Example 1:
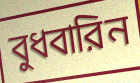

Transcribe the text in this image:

বুধবারিন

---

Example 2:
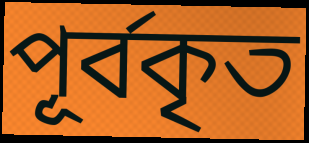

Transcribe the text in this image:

পূর্বকৃত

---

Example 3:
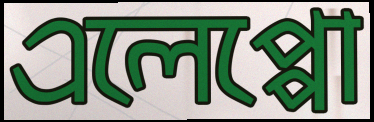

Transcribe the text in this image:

এলেপ্পো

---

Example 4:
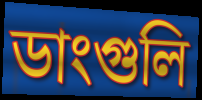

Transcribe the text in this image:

ডাংগুলি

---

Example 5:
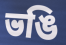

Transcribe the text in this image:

ভঙি